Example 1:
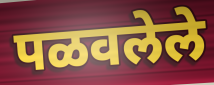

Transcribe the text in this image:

पळवलेले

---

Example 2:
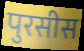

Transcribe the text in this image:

पुरसीस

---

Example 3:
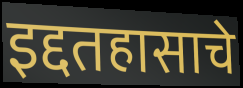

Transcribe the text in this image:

इद्दतहासाचे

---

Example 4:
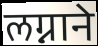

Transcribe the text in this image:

लग्नाने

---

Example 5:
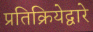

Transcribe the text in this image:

प्रतिक्रियेद्वारे